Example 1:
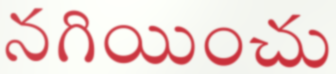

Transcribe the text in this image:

నగియించు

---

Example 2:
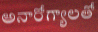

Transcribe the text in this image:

అనారోగ్యాలతో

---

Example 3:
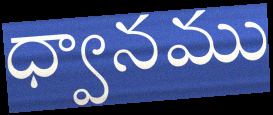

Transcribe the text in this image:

ధ్వానము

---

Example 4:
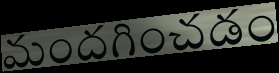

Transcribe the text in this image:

మందగించడం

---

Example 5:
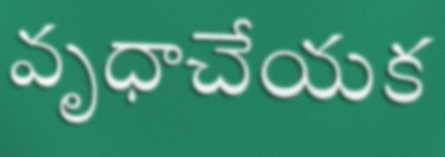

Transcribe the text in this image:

వృధాచేయక